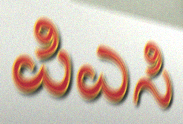
ಪಿಎಸಿ